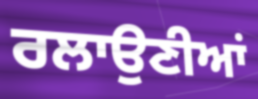
ਰਲਾਉਣੀਆਂ